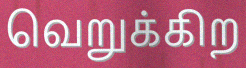
வெறுக்கிற